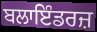
ਬਲਾਇੰਡਰਜ਼